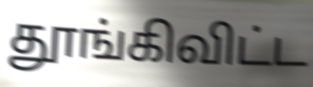
தூங்கிவிட்ட